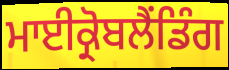
ਮਾਈਕ੍ਰੋਬਲੈਂਡਿੰਗ